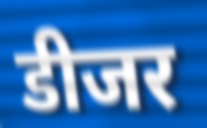
डीजर